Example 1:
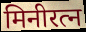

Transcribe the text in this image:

मिनीरत्न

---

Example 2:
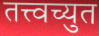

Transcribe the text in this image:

तत्त्वच्युत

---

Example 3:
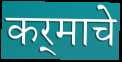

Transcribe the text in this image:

कर्माचे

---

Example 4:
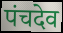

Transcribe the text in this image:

पंचदेव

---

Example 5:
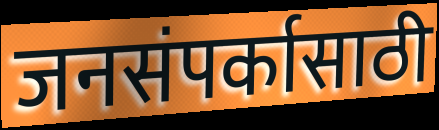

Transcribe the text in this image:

जनसंपर्कासाठी